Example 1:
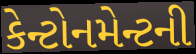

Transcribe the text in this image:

કેન્ટોનમેન્ટની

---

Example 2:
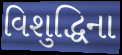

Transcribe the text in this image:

વિશુદ્ધિના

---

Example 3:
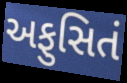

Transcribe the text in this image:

અફુસિતં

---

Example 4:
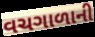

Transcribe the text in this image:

વચગાળાની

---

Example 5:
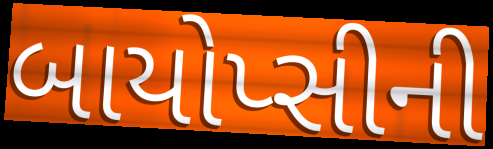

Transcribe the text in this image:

બાયોપ્સીની